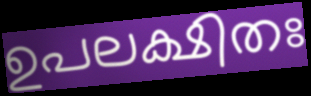
ഉപലക്ഷിതഃ